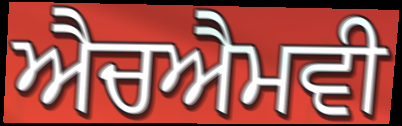
ਐਚਐਮਵੀ